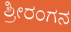
ಶ್ರೀರಂಗನ